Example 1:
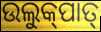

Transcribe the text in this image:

ଉଲୁକ୍‌ପାତ୍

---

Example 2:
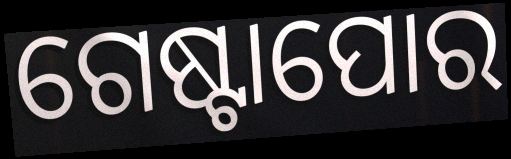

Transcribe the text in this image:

ଗେଷ୍ଟାପୋର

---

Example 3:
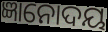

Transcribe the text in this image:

ଜ୍ଞାନୋଦୟ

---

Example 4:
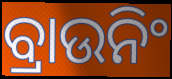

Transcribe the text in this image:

ବ୍ରାଉନିଂ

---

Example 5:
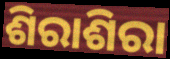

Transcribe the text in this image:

ଶିରାଶିରା